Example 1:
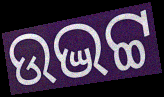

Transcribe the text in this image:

ଉଦ୍ଭଟ୍ଟ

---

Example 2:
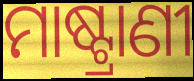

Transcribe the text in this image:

ମାଷ୍ଟ୍ରାଣୀ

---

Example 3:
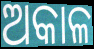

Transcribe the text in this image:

ଅକାଳ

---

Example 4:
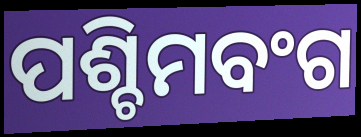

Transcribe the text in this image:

ପଶ୍ଚିମବଂଗ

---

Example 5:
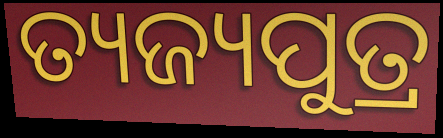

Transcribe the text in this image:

ତ୍ୟଜ୍ୟପୁତ୍ର